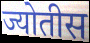
ज्योतीस